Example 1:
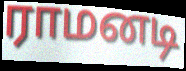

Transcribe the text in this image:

ராமனடி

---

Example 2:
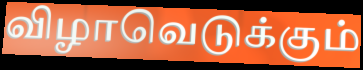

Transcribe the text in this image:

விழாவெடுக்கும்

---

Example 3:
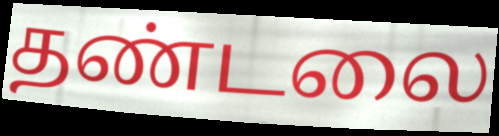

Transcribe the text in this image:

தண்டலை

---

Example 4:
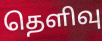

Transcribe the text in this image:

தெளிவு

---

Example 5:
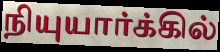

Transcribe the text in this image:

நியுயார்க்கில்